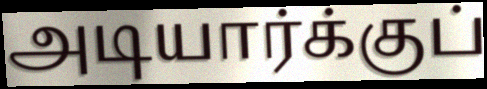
அடியார்க்குப்